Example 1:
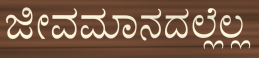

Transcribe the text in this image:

ಜೀವಮಾನದಲ್ಲೆಲ್ಲ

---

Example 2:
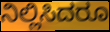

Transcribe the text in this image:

ನಿಲ್ಲಿಸಿದರೂ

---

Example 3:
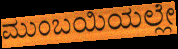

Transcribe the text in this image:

ಮುಂಬಯಿಯಲ್ಲೇ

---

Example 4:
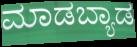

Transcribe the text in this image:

ಮಾಡಬ್ಯಾಡ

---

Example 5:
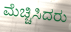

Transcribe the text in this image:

ಮೆಚ್ಚಿಸಿದರು